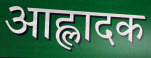
आह्लादक